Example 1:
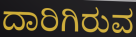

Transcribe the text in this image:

ದಾರಿಗಿರುವ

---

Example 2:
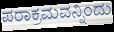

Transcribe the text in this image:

ಪರಾಕ್ರಮವನ್ನಿಂದು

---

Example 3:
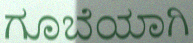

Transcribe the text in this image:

ಗೂಬೆಯಾಗಿ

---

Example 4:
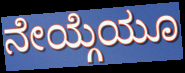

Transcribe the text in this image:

ನೇಯ್ಗೆಯೂ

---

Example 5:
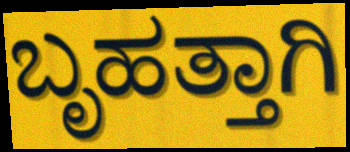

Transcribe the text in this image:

ಬೃಹತ್ತಾಗಿ